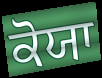
ਕੋਯਾ